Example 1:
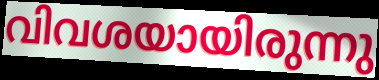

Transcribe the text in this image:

വിവശയായിരുന്നു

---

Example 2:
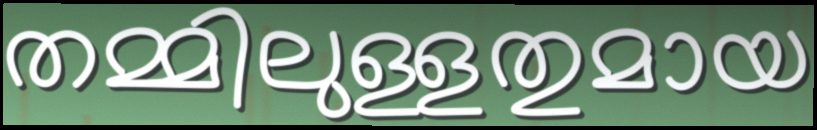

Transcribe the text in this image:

തമ്മിലുള്ളതുമായ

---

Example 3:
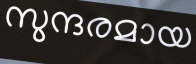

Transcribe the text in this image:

സുന്ദരമായ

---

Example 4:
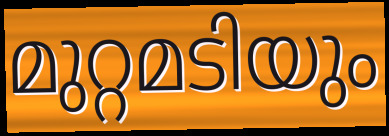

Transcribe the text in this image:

മുറ്റമടിയും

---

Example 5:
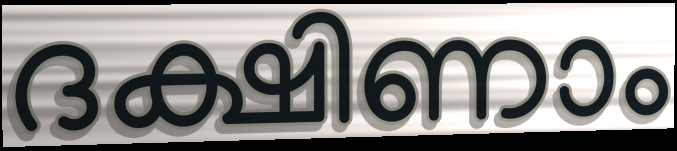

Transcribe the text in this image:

ദക്ഷിണാം